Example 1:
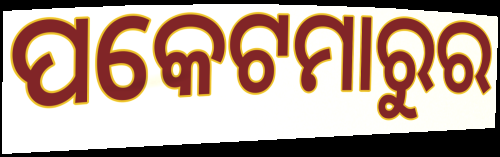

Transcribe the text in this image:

ପକେଟମାରୁର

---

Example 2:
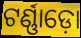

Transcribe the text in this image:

ଟର୍ଣ୍ଣାଡ଼ୋ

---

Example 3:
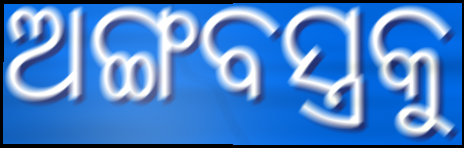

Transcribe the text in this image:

ଅଙ୍ଗବସ୍ତ୍ରକୁ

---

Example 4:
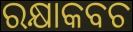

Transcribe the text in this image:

ରକ୍ଷାକବଚ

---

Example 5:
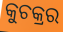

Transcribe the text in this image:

କୁଚକ୍ରର